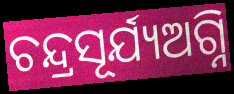
ଚନ୍ଦ୍ରସୂର୍ଯ୍ୟଅଗ୍ନି